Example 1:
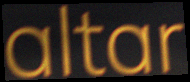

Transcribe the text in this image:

altar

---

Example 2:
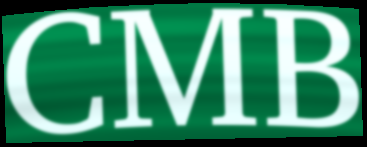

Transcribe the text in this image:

CMB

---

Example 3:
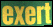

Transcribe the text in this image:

exert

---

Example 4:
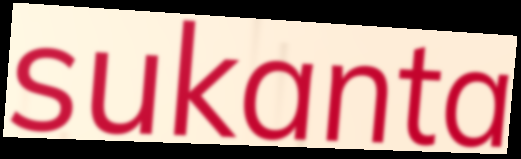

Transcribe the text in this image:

sukanta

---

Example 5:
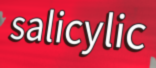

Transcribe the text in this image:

salicylic